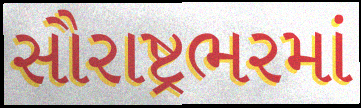
સૌરાષ્ટ્રભરમાં